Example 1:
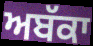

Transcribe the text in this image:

ਅਬੱਕਾ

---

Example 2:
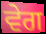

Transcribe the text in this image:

ਵੇਗ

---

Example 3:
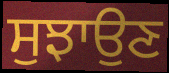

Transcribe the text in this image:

ਸੁਝਾਉਣ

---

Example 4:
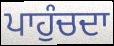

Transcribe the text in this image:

ਪਾਹੁੰਚਦਾ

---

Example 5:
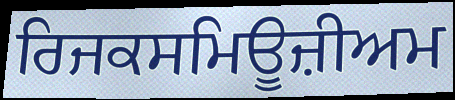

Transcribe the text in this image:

ਰਿਜਕਸਮਿਊਜ਼ੀਅਮ